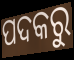
ପଦକରୁ